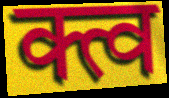
क्त्व